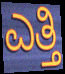
ಎತ್ತಿ